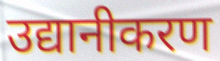
उद्यानीकरण